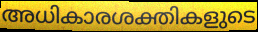
അധികാരശക്തികളുടെ